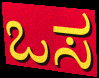
ಒಸ